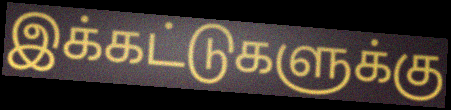
இக்கட்டுகளுக்கு